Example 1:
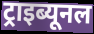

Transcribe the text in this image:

ट्राइब्यूनल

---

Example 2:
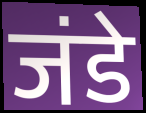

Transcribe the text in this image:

जंडे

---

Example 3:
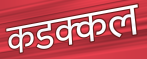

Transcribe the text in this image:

कडक्कल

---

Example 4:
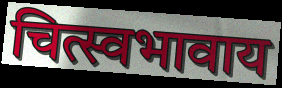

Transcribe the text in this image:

चित्स्वभावाय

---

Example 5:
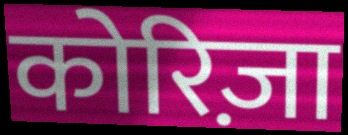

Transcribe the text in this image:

कोरिज़ा